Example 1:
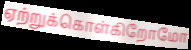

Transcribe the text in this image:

ஏற்றுக்கொள்கிறோமோ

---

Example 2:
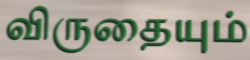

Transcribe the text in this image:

விருதையும்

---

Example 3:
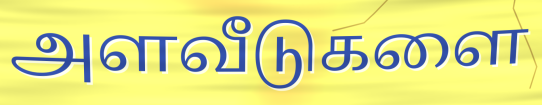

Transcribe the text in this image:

அளவீடுகளை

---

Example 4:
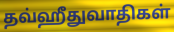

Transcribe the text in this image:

தவ்ஹீதுவாதிகள்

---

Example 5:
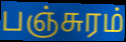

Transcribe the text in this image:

பஞ்சுரம்